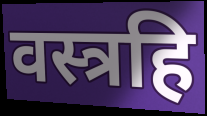
वस्त्रहि